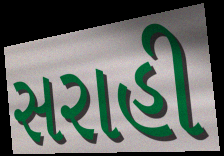
સરાહી